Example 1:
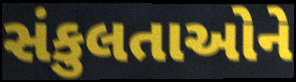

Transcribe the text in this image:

સંકુલતાઓને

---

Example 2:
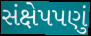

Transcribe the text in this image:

સંક્ષેપપણું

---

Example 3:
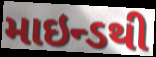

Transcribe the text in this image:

માઇન્ડથી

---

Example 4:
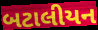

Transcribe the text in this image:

બટાલીયન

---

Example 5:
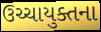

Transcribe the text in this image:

ઉચ્ચાયુક્તના